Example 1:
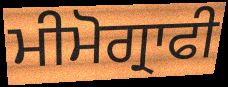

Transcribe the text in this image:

ਮੀਮੋਗ੍ਰਾਫੀ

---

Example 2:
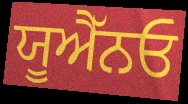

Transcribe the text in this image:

ਯੂਐੱਨਓ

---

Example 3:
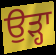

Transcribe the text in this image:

ਉੜ੍ਹਾ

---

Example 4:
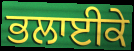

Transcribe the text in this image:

ਭਲਾਈਕੇ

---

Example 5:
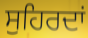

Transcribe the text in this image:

ਸੁਹਿਰਦਾਂ